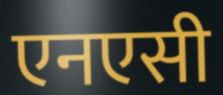
एनएसी